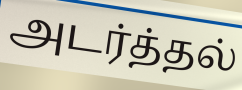
அடர்த்தல்